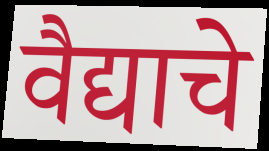
वैद्याचे